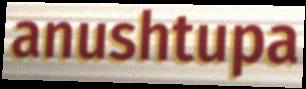
anushtupa